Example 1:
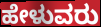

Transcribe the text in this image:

ಹೇಳುವರು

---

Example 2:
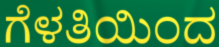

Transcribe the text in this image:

ಗೆಳತಿಯಿಂದ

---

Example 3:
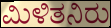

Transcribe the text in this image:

ಮಿಳಿತನಿರು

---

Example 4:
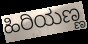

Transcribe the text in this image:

ಹಿರಿಯಣ್ಣ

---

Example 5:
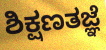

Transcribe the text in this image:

ಶಿಕ್ಷಣತಜ್ಞೆ